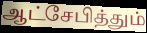
ஆட்சேபித்தும்